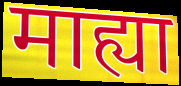
माह्या